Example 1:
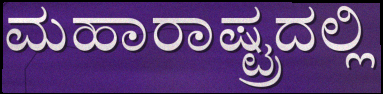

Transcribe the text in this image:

ಮಹಾರಾಷ್ಟ್ರದಲ್ಲಿ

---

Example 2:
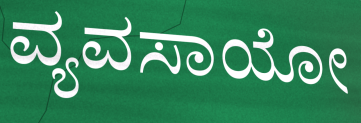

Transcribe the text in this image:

ವ್ಯವಸಾಯೋ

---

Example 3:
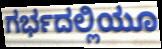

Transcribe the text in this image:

ಗರ್ಭದಲ್ಲಿಯೂ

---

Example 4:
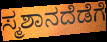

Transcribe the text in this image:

ಸ್ಮಶಾನದೆಡೆಗೆ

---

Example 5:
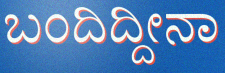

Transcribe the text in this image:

ಬಂದಿದ್ದೀನಾ